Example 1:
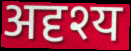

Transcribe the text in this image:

अदृश्य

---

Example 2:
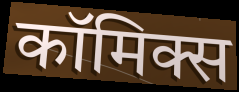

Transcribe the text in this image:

कॉमिक्स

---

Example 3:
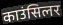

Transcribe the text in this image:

काउंसिलर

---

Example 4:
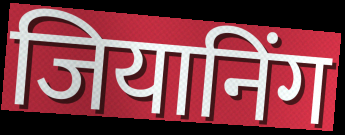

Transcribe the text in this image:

जियानिंग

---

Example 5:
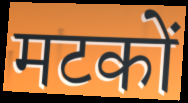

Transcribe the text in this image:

मटकों